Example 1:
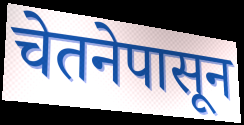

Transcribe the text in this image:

चेतनेपासून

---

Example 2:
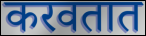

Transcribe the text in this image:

करवतात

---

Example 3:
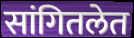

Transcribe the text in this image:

सांगितलेत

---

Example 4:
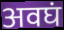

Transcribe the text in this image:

अवघं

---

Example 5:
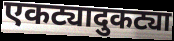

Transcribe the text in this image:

एकट्यादुकट्या